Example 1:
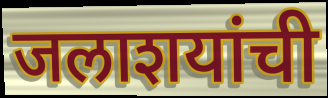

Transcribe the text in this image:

जलाशयांची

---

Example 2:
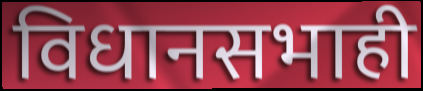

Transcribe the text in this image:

विधानसभाही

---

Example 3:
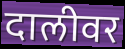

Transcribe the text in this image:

दालीवर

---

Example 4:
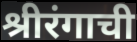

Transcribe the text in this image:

श्रीरंगाची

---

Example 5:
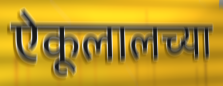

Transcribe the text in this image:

ऐकूलालच्या